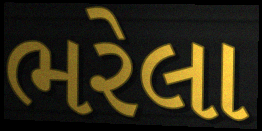
ભરેલા